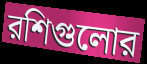
রশিগুলোর